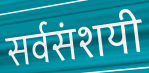
सर्वसंशयी